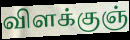
விளக்குஞ்